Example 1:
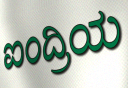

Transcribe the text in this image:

ಐಂದ್ರಿಯ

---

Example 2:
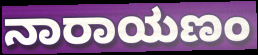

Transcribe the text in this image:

ನಾರಾಯಣಂ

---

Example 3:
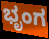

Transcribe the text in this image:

ಭೃಂಗ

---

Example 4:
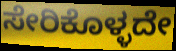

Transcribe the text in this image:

ಸೇರಿಕೊಳ್ಳದೇ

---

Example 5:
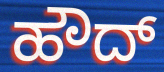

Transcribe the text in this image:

ಹೌದ್